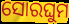
ସୋରଘୁମ